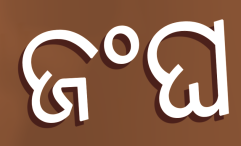
ଜଂଘ